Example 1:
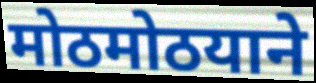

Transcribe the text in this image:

मोठमोठयाने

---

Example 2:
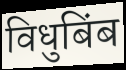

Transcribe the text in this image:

विधुबिंब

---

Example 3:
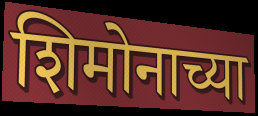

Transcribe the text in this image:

शिमोनाच्या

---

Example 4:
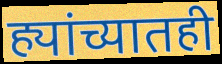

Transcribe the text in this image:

ह्यांच्यातही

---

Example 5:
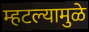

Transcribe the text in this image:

म्हटल्यामुळे